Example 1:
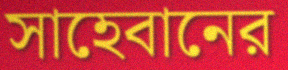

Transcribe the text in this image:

সাহেবানের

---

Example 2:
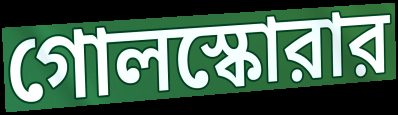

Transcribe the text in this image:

গোলস্কোরার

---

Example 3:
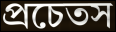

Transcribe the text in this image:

প্রচেতস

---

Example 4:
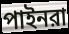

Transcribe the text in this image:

পাইনরা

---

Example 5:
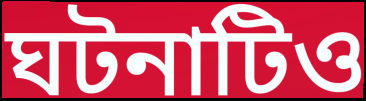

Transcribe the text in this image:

ঘটনাটিও